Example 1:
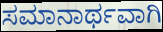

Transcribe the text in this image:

ಸಮಾನಾರ್ಥವಾಗಿ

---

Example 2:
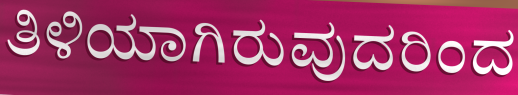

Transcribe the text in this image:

ತಿಳಿಯಾಗಿರುವುದರಿಂದ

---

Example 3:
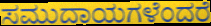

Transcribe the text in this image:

ಸಮುದಾಯಗಳೆಂದರೆ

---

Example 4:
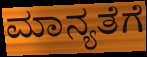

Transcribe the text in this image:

ಮಾನ್ಯತೆಗೆ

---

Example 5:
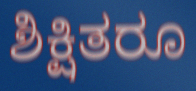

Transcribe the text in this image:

ಶಿಕ್ಷಿತರೂ